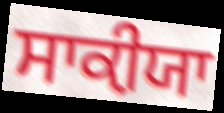
ਸਾਕ਼ੀਯਾ